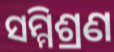
ସମ୍ମିଶ୍ରଣ